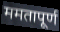
ममतापूर्ण